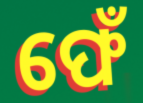
ଫେଁ